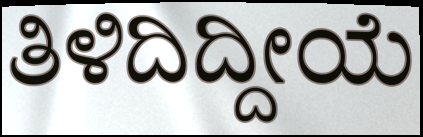
ತಿಳಿದಿದ್ದೀಯೆ